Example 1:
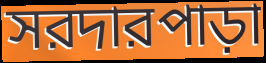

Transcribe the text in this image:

সরদারপাড়া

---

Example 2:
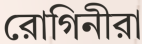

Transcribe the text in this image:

রোগিনীরা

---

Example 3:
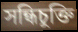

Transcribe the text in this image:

সন্ধিচুক্তি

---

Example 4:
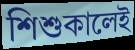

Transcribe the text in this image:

শিশুকালেই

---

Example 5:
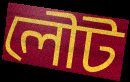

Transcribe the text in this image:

লৌট